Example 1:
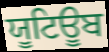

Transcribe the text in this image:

ਯੂਟਿਊਬ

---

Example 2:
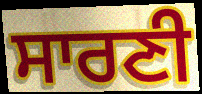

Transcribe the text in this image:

ਸਾਰਣੀ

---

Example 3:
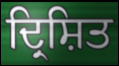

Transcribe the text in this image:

ਦ੍ਰਿਸ਼ਿਤ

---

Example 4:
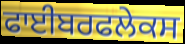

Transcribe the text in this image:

ਫਾਈਬਰਫਲੇਕਸ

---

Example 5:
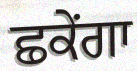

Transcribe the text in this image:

ਛਕੇਂਗਾ